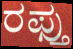
ರಫ್ತು